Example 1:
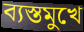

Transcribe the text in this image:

ব্যস্তমুখে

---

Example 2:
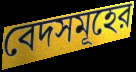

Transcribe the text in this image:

বেদসমূহের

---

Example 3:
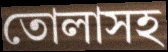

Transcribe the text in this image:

তোলাসহ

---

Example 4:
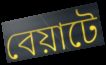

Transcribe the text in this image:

বেয়াটে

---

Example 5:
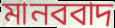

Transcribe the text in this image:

মানববাদ